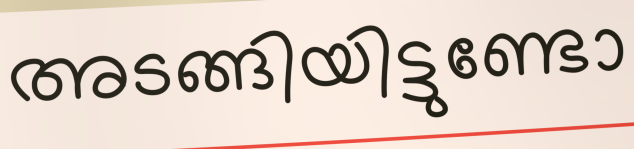
അടങ്ങിയിട്ടുണ്ടോ